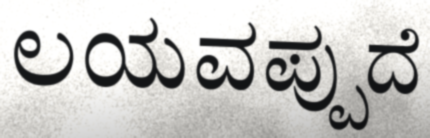
ಲಯವಪ್ಪುದೆ